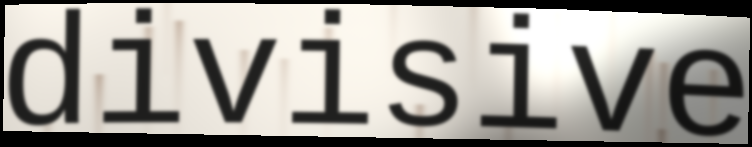
divisive